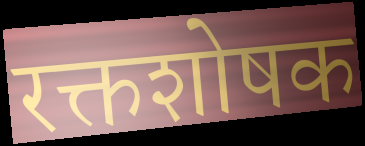
रक्तशोषक